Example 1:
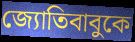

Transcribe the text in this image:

জ্যোতিবাবুকে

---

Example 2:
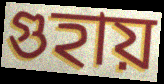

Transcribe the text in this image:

গুহায়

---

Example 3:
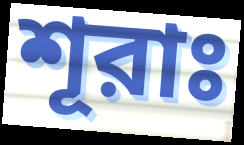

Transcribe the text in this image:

শূরাঃ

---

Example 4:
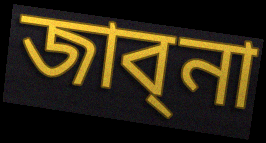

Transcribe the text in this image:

জাব্‌না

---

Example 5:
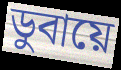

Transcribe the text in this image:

ডুবায়ে